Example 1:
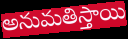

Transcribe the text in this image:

అనుమతిస్తాయి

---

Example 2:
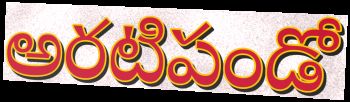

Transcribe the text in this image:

అరటిపండో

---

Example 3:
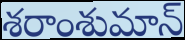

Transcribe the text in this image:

శరాంశుమాన్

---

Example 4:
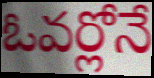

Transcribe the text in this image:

ఓవర్లోనే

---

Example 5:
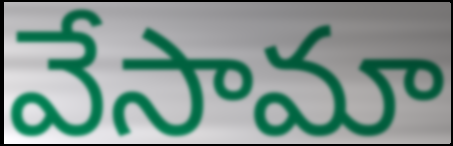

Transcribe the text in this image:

వేసామా